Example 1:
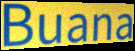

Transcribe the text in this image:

Buana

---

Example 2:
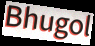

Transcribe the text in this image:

Bhugol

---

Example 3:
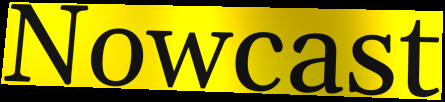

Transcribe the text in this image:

Nowcast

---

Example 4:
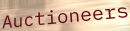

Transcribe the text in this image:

Auctioneers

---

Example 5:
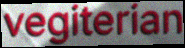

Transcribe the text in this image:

vegiterian